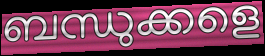
ബന്ധുക്കളെ